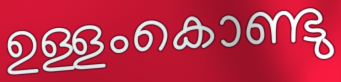
ഉള്ളംകൊണ്ടു